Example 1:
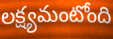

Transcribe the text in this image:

లక్ష్యమంటోంది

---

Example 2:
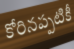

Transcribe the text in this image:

కోరినప్పటికీ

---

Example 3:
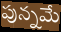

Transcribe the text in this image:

పున్నమే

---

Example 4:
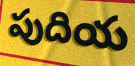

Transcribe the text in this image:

పుదియ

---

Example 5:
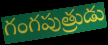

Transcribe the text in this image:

గంగపుత్రుడు